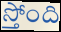
స్తోంది